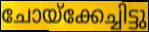
ചോയ്ക്കേച്ചിട്ടു